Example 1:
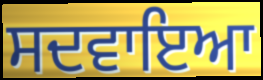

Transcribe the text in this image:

ਸਦਵਾਇਆ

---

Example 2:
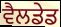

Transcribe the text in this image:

ਵੈਲਡੇਡ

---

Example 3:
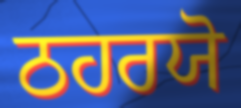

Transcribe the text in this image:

ਠਹਰਯੋ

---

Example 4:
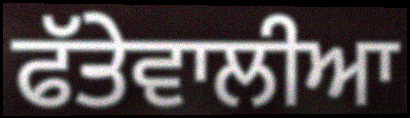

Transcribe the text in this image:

ਫੱਤੇਵਾਲੀਆ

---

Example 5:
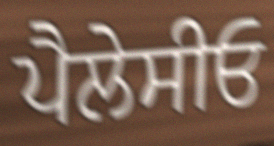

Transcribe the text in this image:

ਪੈਲੇਸੀਓ